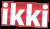
ikki